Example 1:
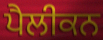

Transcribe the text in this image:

ਪੈਲੀਕਨ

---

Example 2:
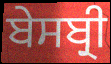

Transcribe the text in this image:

ਬੇਸਬ੍ਰੀ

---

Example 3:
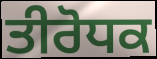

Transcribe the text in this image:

ਤੀਰੋਧਕ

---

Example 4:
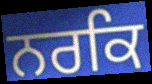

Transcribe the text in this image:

ਨਰਕਿ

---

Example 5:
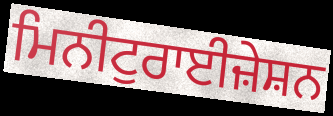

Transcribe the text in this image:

ਮਿਨੀਟੁਰਾਈਜ਼ੇਸ਼ਨ